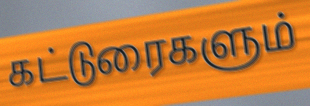
கட்டுரைகளும்